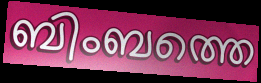
ബിംബത്തെ